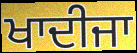
ਖਾਦੀਜਾ